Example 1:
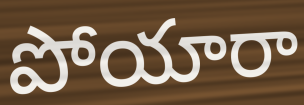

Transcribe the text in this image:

పోయారా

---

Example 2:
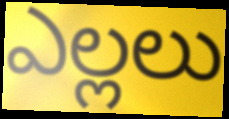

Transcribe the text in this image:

ఎల్లలు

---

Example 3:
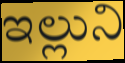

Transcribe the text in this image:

ఇల్లుని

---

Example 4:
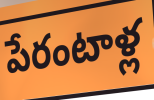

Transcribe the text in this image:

పేరంటాళ్ల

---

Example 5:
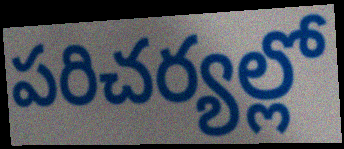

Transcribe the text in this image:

పరిచర్యల్లో